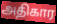
அதிகார